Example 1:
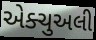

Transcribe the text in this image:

એક્ચુઅલી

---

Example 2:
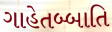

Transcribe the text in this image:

ગાહેતબ્બાતિ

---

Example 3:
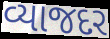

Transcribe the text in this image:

વ્યાજદર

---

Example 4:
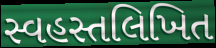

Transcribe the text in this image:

સ્વહસ્તલિખિત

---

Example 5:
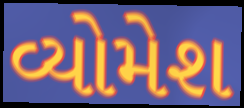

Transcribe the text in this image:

વ્યોમેશ